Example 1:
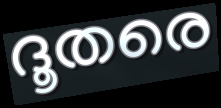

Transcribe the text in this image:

ദൂതരെ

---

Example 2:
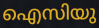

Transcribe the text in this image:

ഐസിയു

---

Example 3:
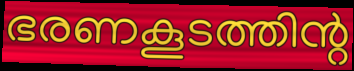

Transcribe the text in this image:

ഭരണകൂടത്തിന്റ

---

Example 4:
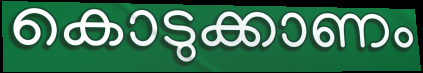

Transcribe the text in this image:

കൊടുക്കാണം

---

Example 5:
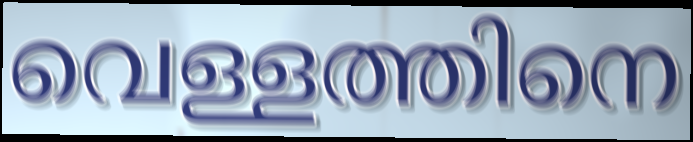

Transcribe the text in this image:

വെള്ളത്തിനെ